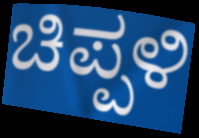
ಚಿಪ್ಪಳಿ